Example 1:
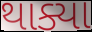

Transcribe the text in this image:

થાક્યા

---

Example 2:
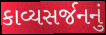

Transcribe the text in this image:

કાવ્યસર્જનનું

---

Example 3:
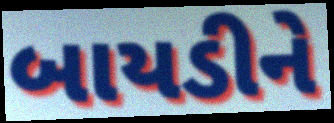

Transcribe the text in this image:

બાયડીને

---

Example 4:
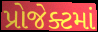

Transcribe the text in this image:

પ્રોજેક્ટમાં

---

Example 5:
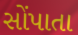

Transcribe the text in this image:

સોંપાતા